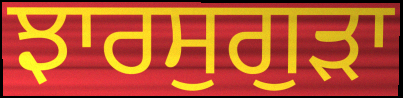
ਝਾਰਸੁਗੁੜਾ